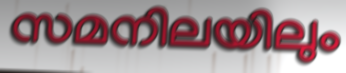
സമനിലയിലും